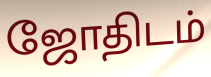
ஜோதிடம்